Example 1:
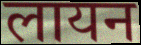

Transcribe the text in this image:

लायन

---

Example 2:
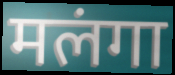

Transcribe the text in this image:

मलंगा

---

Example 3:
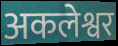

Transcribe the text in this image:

अकलेश्वर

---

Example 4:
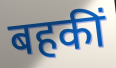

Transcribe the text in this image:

बहकीं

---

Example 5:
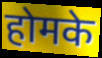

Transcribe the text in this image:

होमके